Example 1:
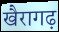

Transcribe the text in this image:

खैरागढ़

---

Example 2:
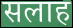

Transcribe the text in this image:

सलाह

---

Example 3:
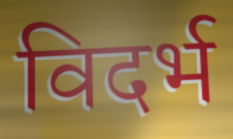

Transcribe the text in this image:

विदर्भ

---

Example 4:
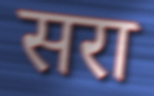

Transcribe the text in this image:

सरा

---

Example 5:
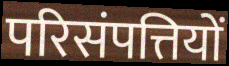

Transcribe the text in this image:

परिसंपत्तियों